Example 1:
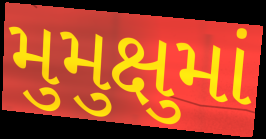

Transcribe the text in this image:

મુમુક્ષુમાં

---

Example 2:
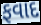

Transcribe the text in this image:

ફવાદ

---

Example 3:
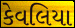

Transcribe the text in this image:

કેવલિયા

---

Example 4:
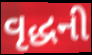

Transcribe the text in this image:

વૃદ્ધની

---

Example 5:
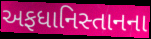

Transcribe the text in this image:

અફધાનિસ્તાનના